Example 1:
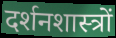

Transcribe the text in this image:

दर्शनशास्त्रों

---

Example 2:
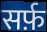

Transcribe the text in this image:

सर्फ़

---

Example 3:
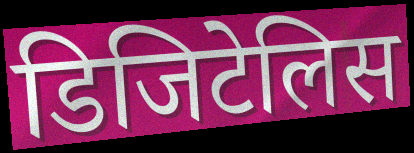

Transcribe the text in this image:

डिजिटेलिस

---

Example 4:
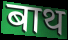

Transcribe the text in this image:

बाथ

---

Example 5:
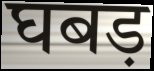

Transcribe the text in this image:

घबड़